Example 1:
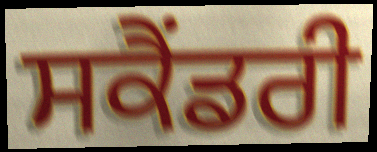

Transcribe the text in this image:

ਸਕੈੰਡਰੀ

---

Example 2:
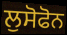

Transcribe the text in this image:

ਲੁਸੋਫੋਨ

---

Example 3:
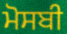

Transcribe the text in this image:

ਮੋਸਬੀ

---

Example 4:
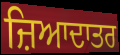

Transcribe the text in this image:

ਜ਼ਿਆਦਾਤਰ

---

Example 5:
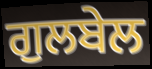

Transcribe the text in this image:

ਗੁਲਬੇਲ